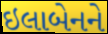
ઇલાબેનને